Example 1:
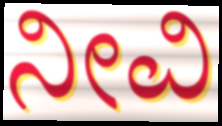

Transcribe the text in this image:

ನೀವಿ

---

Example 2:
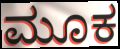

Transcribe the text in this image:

ಮೂಕ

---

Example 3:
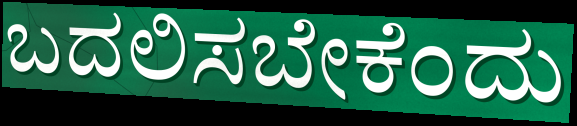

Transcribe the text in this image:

ಬದಲಿಸಬೇಕೆಂದು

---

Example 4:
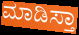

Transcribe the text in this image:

ಮಾಡಿಸ್ತಾ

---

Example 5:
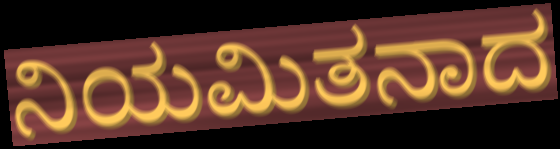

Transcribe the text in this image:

ನಿಯಮಿತನಾದ